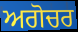
ਅਗੋਚਰ